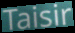
Taisir